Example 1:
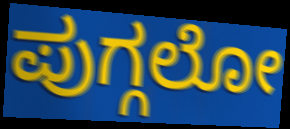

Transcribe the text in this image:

ಪುಗ್ಗಲೋ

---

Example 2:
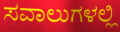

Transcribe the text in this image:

ಸವಾಲುಗಳಲ್ಲಿ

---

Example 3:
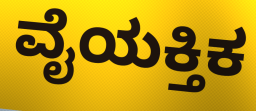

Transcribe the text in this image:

ವೈಯಕ್ತಿಕ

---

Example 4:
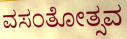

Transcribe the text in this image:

ವಸಂತೋತ್ಸವ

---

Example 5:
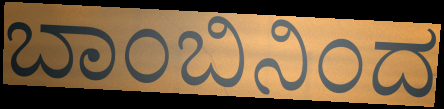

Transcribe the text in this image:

ಬಾಂಬಿನಿಂದ